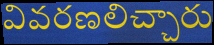
వివరణలిచ్చారు